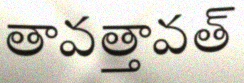
తావత్తావత్